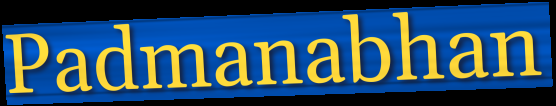
Padmanabhan